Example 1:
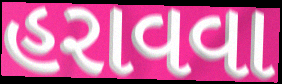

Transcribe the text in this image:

હરાવવા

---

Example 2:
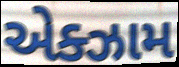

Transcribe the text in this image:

એક્ઝામ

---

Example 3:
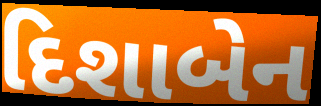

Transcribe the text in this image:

દિશાબેન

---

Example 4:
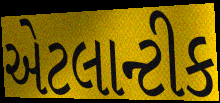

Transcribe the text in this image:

એટલાન્ટીક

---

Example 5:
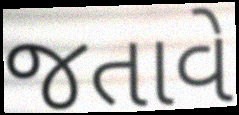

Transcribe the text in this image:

જતાવે